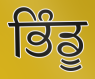
ਭਿੰਡੂ